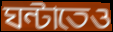
ঘন্টাতেও